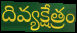
దివ్యక్షేత్రం